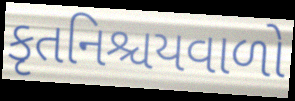
કૃતનિશ્ચયવાળો